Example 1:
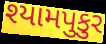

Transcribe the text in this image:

શ્યામપુકુર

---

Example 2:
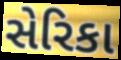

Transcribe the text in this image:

સેરિકા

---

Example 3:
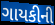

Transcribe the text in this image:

ગાયકીની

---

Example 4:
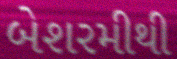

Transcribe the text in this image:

બેશરમીથી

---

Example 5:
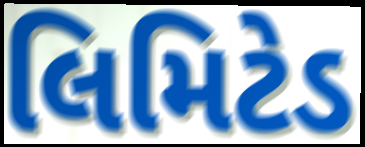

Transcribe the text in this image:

લિમિટેડ